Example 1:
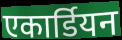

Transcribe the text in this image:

एकार्डियन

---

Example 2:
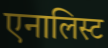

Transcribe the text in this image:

एनालिस्ट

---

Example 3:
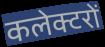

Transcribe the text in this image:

कलेक्टरों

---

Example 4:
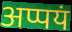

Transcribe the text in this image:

अप्पयं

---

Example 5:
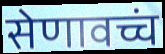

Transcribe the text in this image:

सेणावच्चं